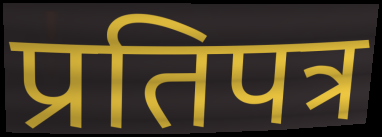
प्रतिपत्र